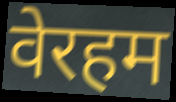
वेरहम